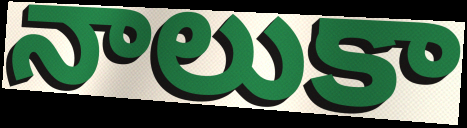
నాలుకా